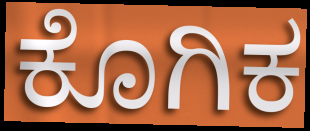
ಕೊಗಿಕ